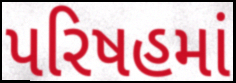
પરિષહમાં